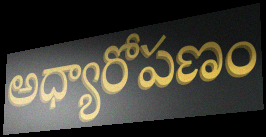
అధ్యారోపణం